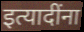
इत्यादींना